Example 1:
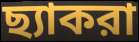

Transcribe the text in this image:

ছ্যাকরা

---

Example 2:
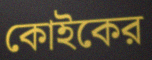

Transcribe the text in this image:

কোইকের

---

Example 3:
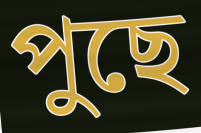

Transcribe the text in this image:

পুছে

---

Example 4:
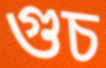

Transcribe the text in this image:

গুচ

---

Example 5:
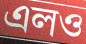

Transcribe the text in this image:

এলও